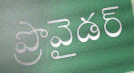
ప్రొవైడర్